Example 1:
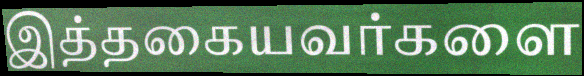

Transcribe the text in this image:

இத்தகையவர்களை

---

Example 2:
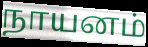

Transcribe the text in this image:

நாயனம்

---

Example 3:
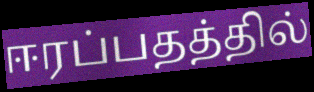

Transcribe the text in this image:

ஈரப்பதத்தில்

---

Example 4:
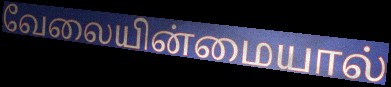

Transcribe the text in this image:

வேலையின்மையால்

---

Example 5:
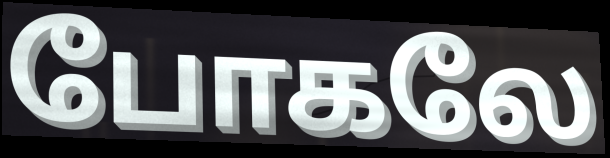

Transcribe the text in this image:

போகலே